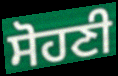
ਸੋਹਣੀ